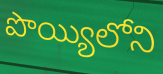
పొయ్యిలోని